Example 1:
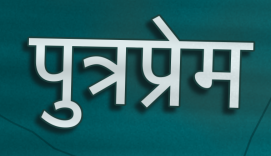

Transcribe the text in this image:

पुत्रप्रेम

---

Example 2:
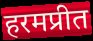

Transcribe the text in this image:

हरमप्रीत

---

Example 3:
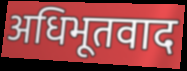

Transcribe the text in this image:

अधिभूतवाद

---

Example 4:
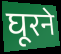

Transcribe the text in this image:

घूरने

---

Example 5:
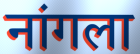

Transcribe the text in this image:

नांगला